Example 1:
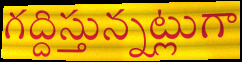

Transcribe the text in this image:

గద్దిస్తున్నట్లుగా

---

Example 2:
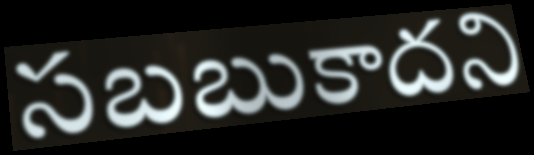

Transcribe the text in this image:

సబబుకాదని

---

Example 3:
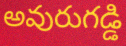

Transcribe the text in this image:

అవురుగడ్డి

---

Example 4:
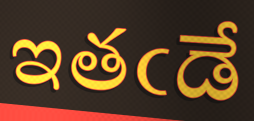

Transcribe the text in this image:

ఇతఁడే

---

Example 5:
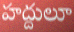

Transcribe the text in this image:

హద్దులూ